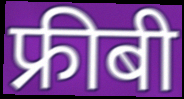
फ्रीबी